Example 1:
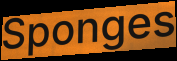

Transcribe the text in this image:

Sponges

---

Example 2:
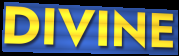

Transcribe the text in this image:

DIVINE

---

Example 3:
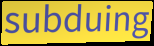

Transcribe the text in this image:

subduing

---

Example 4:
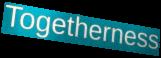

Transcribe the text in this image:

Togetherness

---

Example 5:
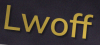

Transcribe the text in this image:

Lwoff